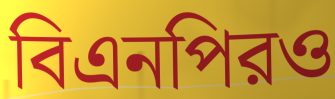
বিএনপিরও